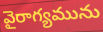
వైరాగ్యమును